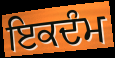
ਇਕਦੰਮ